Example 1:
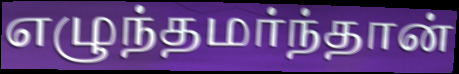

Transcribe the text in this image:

எழுந்தமர்ந்தான்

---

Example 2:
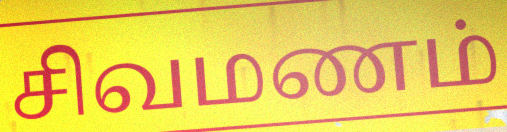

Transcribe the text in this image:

சிவமணம்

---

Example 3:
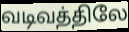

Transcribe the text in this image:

வடிவத்திலே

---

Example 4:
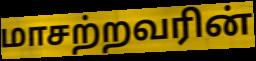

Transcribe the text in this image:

மாசற்றவரின்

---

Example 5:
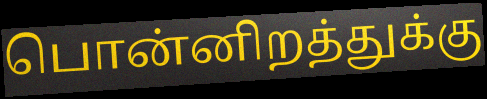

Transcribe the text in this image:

பொன்னிறத்துக்கு